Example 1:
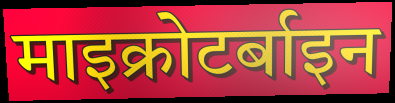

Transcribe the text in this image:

माइक्रोटर्बाइन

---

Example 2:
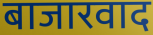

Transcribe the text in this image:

बाजारवाद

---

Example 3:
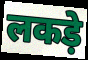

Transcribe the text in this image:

लकड़े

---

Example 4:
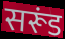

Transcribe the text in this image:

सरूंड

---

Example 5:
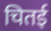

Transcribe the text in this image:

चितई